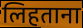
लिहताना